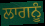
ਲਾਗਨੂੰ